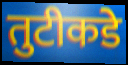
तुटीकडे